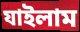
যাইলাম